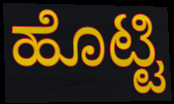
ಹೊಟ್ಟಿ